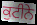
ਕੁਟੀਨੇ